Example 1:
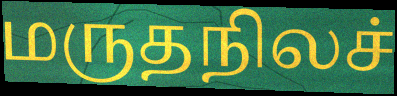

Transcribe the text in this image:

மருதநிலச்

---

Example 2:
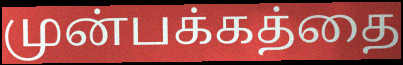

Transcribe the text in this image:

முன்பக்கத்தை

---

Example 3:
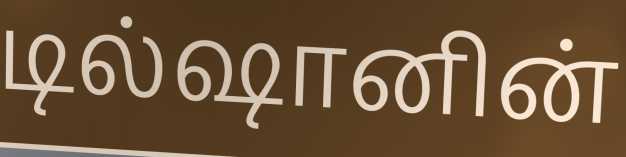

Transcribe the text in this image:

டில்ஷானின்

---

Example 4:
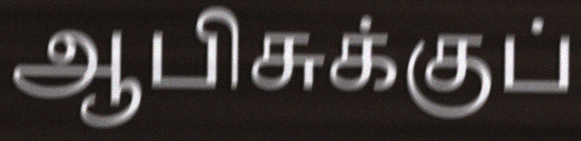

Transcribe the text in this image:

ஆபிசுக்குப்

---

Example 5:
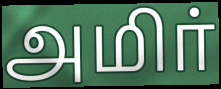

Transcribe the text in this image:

அமிர்